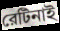
রেটিনাই